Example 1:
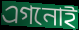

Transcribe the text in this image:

এগনোই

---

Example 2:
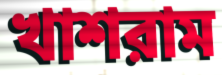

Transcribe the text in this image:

খাশরাম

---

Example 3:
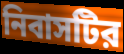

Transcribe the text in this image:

নিবাসটির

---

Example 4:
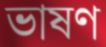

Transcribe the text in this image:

ভাষণ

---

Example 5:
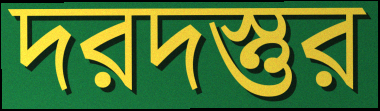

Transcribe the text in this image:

দরদস্তুর